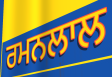
ਰਮਨਲਾਲ